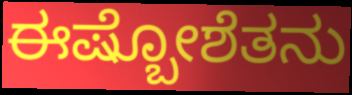
ಈಷ್ಬೋಶೆತನು